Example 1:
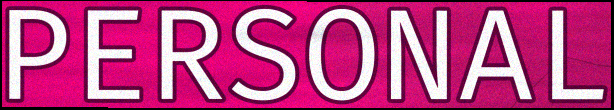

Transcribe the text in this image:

PERSONAL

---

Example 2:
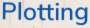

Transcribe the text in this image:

Plotting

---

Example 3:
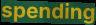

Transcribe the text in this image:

spending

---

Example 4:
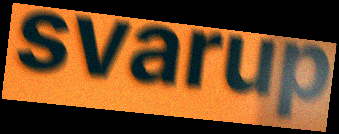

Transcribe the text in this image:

svarup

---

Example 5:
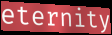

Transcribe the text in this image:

eternity